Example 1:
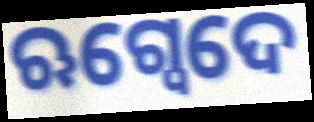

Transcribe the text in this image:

ଋଗ୍ଵେଦେ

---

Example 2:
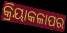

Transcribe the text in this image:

କ୍ରିୟାକଳାପର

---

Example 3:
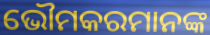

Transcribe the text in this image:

ଭୌମକରମାନଙ୍କ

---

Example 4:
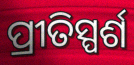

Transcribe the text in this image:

ପ୍ରୀତିସ୍ପର୍ଶ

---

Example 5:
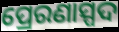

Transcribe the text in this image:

ପ୍ରେରଣାସ୍ପଦ